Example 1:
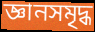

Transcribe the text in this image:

জ্ঞানসমৃদ্ধ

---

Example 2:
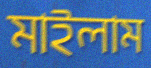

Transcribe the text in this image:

মাইলাম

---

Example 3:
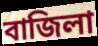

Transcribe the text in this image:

বাজিলা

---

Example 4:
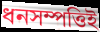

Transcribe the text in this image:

ধনসম্পত্তিই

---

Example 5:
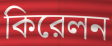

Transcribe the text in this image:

কিরেলন